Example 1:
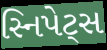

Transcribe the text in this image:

સ્નિપેટ્સ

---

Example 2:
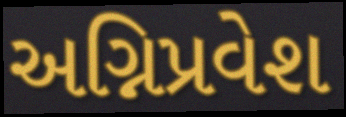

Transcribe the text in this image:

અગ્નિપ્રવેશ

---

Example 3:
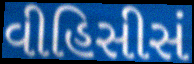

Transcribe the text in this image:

વીહિસીસં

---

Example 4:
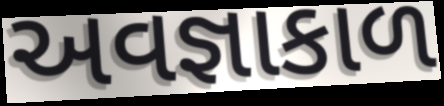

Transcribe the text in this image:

અવજ્ઞાકાળ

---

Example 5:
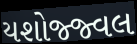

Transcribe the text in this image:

યશોજ્જ્વલ